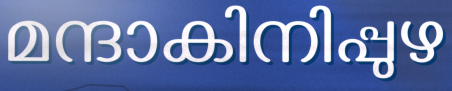
മന്ദാകിനിപ്പുഴ